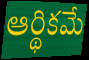
ఆర్థికమే